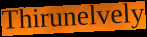
Thirunelvely